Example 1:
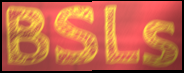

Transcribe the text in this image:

BSLs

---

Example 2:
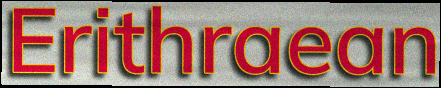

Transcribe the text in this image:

Erithraean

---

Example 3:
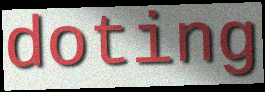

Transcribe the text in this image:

doting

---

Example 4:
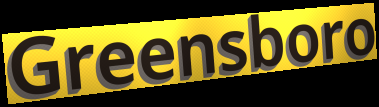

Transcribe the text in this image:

Greensboro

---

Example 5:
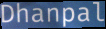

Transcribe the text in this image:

Dhanpal